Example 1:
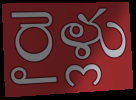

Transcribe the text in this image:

రైళ్లు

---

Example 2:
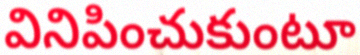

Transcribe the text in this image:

వినిపించుకుంటూ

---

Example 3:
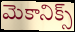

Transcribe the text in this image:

మెకానిక్స్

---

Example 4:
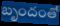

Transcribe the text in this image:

బృందంతో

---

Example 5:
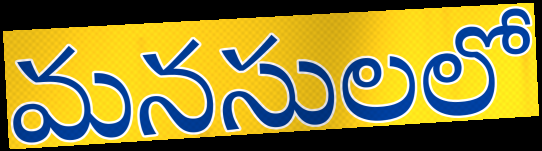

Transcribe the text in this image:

మనసులలో